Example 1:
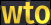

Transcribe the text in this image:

wto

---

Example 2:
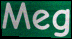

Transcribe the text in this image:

Meg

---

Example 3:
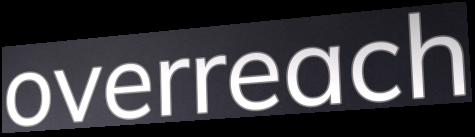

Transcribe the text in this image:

overreach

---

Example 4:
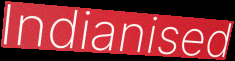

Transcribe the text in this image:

Indianised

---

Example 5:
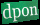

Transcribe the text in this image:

dpon